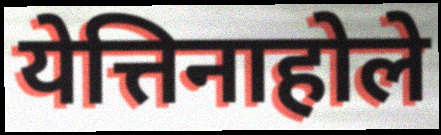
येत्तिनाहोले